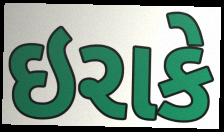
ઇરાકે